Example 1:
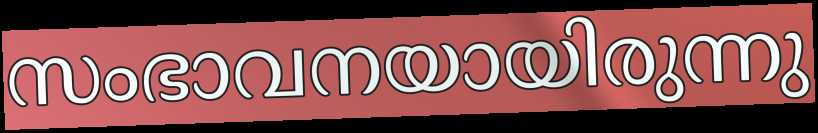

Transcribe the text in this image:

സംഭാവനയായിരുന്നു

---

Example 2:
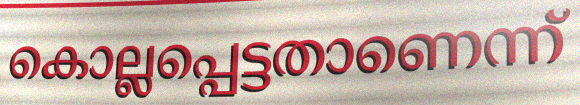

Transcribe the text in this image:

കൊല്ലപ്പെട്ടതാണെന്ന്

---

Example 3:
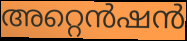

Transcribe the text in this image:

അറ്റെൻഷൻ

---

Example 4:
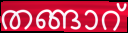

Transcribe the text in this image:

തങ്ങാറ്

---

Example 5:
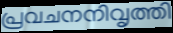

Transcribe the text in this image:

പ്രവചനനിവൃത്തി